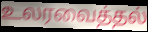
உலரவைத்தல்